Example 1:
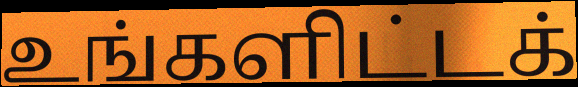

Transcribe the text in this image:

உங்களிட்டக்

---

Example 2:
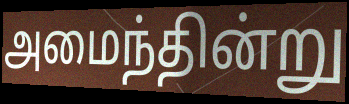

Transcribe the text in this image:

அமைந்தின்று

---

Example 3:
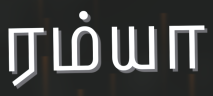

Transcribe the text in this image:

ரம்யா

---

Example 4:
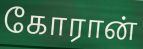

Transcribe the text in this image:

கோரான்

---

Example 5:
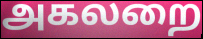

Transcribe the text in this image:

அகலறை